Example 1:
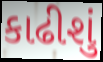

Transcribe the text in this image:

કાઢીશું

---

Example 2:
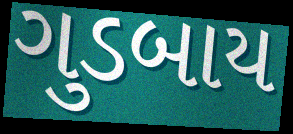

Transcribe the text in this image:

ગુડબાય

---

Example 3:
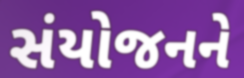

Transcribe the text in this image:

સંયોજનને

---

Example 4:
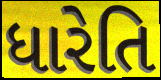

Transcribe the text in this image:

ધારેતિ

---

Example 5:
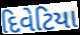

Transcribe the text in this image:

દિવેટિયા